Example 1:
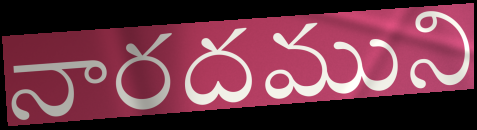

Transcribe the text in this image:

నారదముని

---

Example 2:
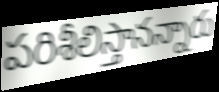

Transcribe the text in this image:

పరిశీలిస్తానన్నారు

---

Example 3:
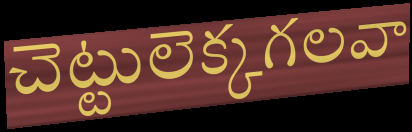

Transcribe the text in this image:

చెట్టులెక్కగలవా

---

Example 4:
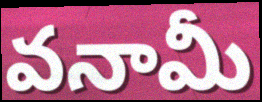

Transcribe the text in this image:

వనామీ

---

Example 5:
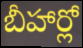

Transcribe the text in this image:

బీహార్లో